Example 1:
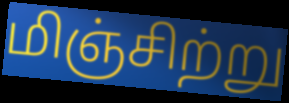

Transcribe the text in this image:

மிஞ்சிற்று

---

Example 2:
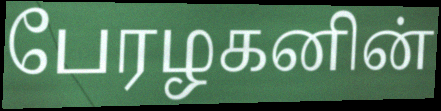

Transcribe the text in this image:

பேரழகனின்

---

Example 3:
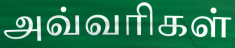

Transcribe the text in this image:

அவ்வரிகள்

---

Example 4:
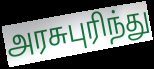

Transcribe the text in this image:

அரசுபுரிந்து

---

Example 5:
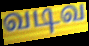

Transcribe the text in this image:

வடிவ